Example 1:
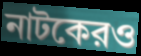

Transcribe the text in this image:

নাটকেরও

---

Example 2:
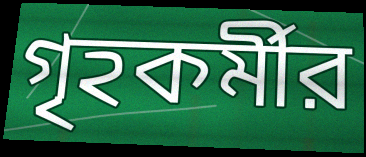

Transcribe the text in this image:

গৃহকর্মীর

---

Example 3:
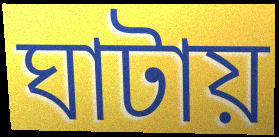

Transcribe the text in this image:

ঘাটায়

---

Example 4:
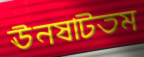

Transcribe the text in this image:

ঊনষাটতম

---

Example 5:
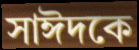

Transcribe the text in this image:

সাঈদকে